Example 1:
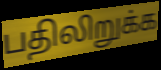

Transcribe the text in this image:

பதிலிறுக்க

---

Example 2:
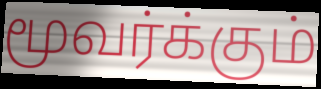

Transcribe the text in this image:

மூவர்க்கும்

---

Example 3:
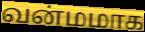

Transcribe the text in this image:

வன்மமாக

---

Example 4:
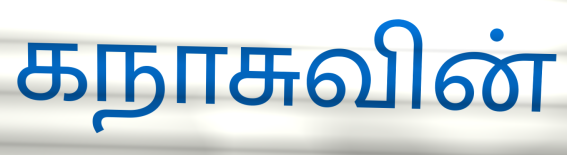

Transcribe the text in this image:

கநாசுவின்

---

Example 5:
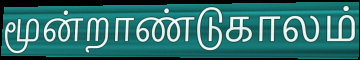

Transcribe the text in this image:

மூன்றாண்டுகாலம்